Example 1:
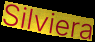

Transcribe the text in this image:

Silviera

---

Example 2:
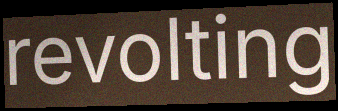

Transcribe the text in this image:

revolting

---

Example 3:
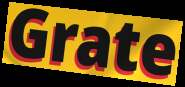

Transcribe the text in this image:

Grate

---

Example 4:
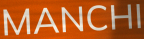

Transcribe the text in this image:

MANCHI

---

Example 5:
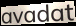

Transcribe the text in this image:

avadat